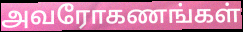
அவரோகணங்கள்